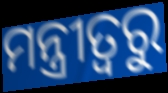
ମନ୍ତ୍ରୀତ୍ୱରୁ